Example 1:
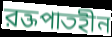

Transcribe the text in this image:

রক্তপাতহীন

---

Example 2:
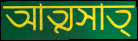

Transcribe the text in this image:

আত্মসাত্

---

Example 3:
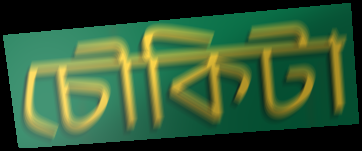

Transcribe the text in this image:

চৌকিটা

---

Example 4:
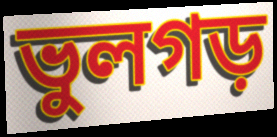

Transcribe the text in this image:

ভুলগড়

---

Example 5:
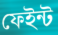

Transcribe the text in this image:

ফেইন্ট